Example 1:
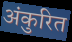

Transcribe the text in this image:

अंकुरित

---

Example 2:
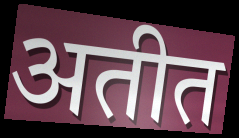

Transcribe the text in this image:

अतीत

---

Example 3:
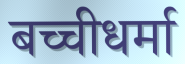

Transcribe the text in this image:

बच्चीधर्मा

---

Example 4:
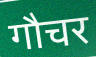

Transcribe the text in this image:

गौचर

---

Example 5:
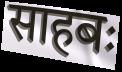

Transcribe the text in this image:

साहबः